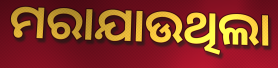
ମରାଯାଉଥିଲା